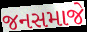
જનસમાજે